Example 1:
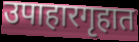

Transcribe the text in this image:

उपाहारगृहात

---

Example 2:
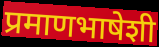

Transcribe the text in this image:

प्रमाणभाषेशी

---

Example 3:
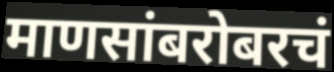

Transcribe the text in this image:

माणसांबरोबरचं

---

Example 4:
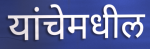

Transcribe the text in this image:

यांचेमधील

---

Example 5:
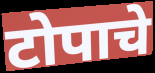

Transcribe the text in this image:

टोपाचे